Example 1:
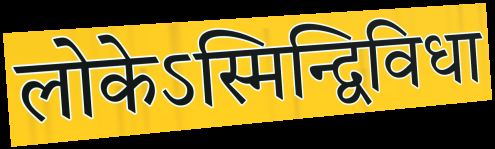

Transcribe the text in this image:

लोकेऽस्मिन्द्विविधा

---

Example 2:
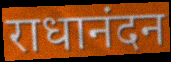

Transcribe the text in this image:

राधानंदन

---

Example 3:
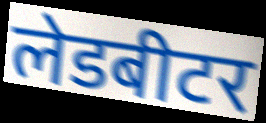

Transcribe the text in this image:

लेडबीटर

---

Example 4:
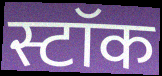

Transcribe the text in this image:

स्टॉक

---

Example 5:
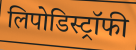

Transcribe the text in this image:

लिपोडिस्ट्रॉफी